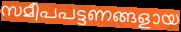
സമീപപട്ടണങ്ങളായ